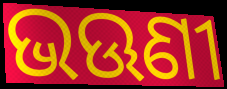
ଭଊଣୀ